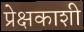
प्रेक्षकाशी